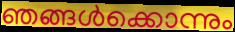
ഞങ്ങൾക്കൊന്നും